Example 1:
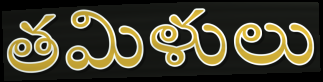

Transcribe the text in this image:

తమిళులు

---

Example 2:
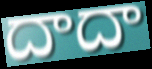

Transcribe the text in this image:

దాదా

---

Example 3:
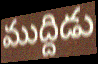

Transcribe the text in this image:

ముద్దిడు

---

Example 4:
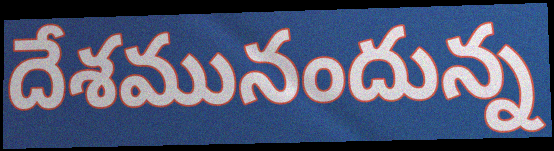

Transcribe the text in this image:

దేశమునందున్న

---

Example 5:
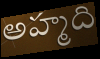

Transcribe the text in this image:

అహ్మది